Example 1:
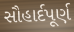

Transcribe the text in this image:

સૌહાર્દપૂર્ણ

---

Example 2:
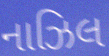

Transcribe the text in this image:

નાઝિલ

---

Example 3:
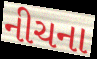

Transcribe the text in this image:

નીચના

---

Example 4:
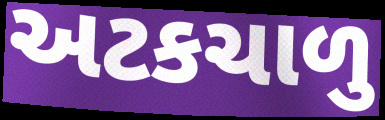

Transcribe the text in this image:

અટકચાળુ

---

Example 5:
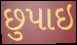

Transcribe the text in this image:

છુપાઇ